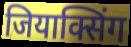
जियाक्सिंग